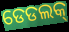
ଡେଡଲକ୍